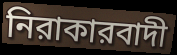
নিরাকারবাদী